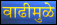
वाढीमुळे